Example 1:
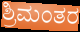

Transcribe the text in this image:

ಶ್ರಿಮಂತರ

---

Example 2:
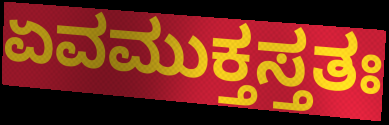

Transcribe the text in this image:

ಏವಮುಕ್ತಸ್ತತಃ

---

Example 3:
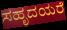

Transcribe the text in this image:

ಸಹೃದಯರೆ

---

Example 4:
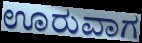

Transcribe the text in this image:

ಊರುವಾಗ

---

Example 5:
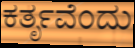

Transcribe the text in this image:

ಕರ್ತೃವೆಂದು